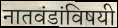
नातवंडांविषयी